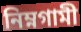
নিম্নগামী